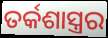
ତର୍କଶାସ୍ତ୍ରର